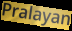
Pralayan